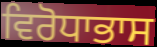
ਵਿਰੋਧਾਭਾਸ